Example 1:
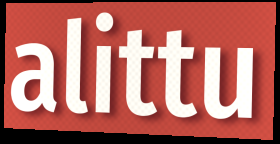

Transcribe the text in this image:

alittu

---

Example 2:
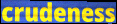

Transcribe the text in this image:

crudeness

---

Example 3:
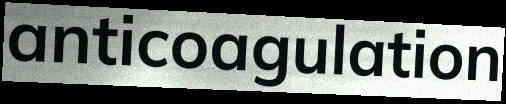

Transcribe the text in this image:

anticoagulation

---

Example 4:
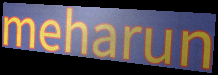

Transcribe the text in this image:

meharun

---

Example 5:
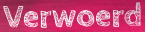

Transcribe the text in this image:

Verwoerd